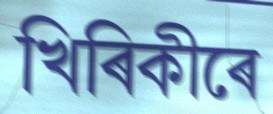
খিৰিকীৰে